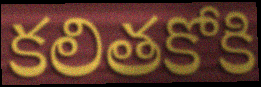
కలితకోకి